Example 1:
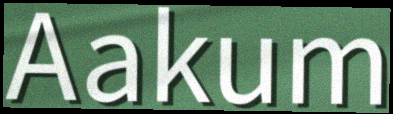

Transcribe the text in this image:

Aakum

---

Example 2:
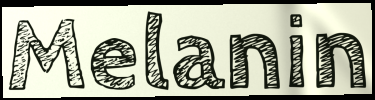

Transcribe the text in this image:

Melanin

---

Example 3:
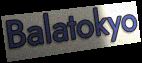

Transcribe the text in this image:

Balatokyo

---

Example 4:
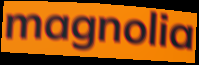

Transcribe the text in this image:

magnolia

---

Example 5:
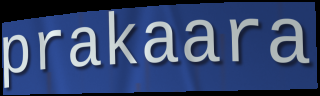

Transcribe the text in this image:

prakaara